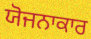
ਯੋਜਨਾਕਾਰ